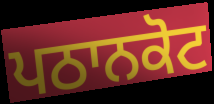
ਪਠਾਨਕੋਟ